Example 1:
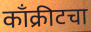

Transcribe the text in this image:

काँक्रीटचा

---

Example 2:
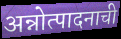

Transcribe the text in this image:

अन्नोत्पादनाची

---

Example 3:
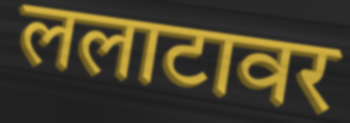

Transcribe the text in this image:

ललाटावर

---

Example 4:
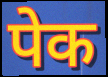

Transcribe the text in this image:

पेक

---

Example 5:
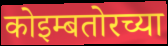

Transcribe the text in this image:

कोइम्बतोरच्या